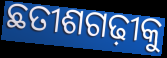
ଛତୀଶଗଢ଼ୀକୁ